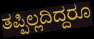
ತಪ್ಪಿಲ್ಲದಿದ್ದರೂ